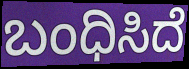
ಬಂಧಿಸಿದೆ